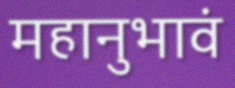
महानुभावं